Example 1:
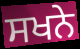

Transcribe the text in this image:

ਸਖਨੇ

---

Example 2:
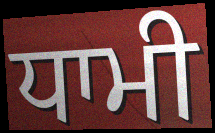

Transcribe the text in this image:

ਧਾਮੀ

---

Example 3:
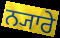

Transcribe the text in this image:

ਨ੍ਯਾਰੇ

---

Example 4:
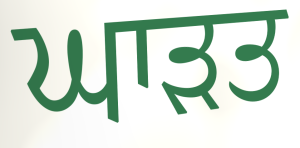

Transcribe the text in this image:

ਘਾੜਤ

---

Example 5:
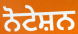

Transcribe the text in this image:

ਨੋਟੇਸ਼ਨ